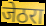
जेठरा